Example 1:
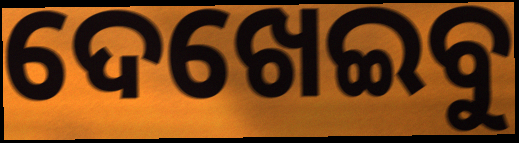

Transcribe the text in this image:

ଦେଖେଇବୁ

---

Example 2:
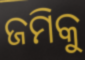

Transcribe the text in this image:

ଜମିକୁ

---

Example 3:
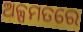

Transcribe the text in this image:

ଅଳ୍ପମତରେ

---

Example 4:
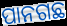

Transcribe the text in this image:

ପାନଗଛ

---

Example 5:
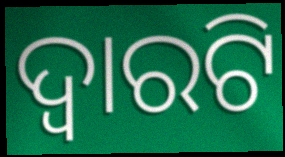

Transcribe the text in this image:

ଦ୍ୱାରଟି